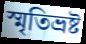
স্মৃতিভ্রষ্ট